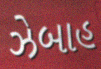
ઝેબાહ